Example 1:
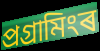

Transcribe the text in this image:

প্ৰগ্ৰামিংৰ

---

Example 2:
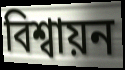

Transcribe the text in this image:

বিশ্বায়ন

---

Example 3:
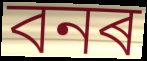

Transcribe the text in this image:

বনৰ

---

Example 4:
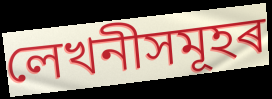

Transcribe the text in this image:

লেখনীসমূহৰ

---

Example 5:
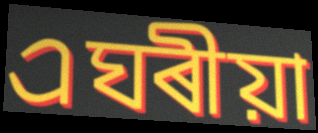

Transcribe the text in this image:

এঘৰীয়া